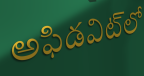
అఫిడవిట్‌లో